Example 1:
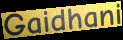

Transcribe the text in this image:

Gaidhani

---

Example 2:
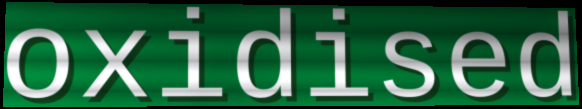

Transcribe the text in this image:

oxidised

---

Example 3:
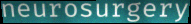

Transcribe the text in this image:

neurosurgery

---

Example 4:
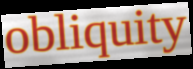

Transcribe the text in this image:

obliquity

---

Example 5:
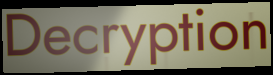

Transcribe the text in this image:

Decryption